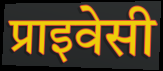
प्राइवेसी